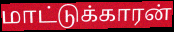
மாட்டுக்காரன்